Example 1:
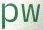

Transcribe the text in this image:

pw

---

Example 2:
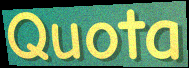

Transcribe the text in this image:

Quota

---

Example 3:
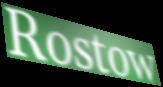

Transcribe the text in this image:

Rostow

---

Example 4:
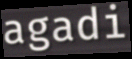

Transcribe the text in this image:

agadi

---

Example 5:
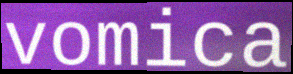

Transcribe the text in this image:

vomica